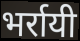
भर्रायी